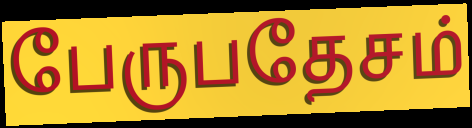
பேருபதேசம்